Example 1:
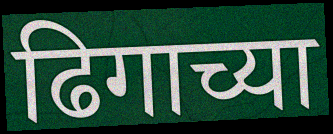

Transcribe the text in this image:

ढिगाच्या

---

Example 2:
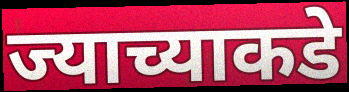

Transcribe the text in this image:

ज्याच्याकडे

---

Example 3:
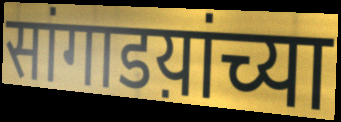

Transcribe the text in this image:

सांगाडय़ांच्या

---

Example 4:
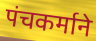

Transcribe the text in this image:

पंचकर्माने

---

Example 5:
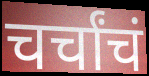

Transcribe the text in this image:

चर्चांचं